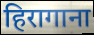
हिरागाना